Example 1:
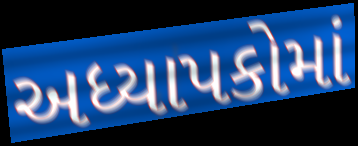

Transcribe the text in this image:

અધ્યાપકોમાં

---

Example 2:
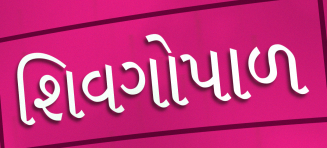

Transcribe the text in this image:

શિવગોપાળ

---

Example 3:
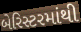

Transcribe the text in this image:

બેરિસ્ટરમાંથી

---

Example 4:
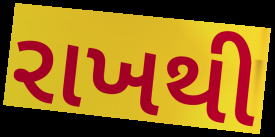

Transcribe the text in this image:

રાખથી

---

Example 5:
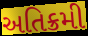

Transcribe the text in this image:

અતિક્રમી